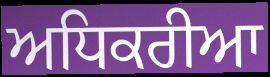
ਅਧਿਕਰੀਆ